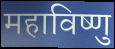
महाविष्णु